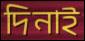
দিনাই